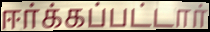
ஈர்க்கப்பட்டார்